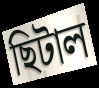
ছিটাল